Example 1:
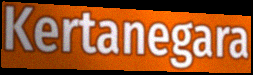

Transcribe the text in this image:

Kertanegara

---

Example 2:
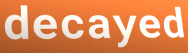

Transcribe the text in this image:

decayed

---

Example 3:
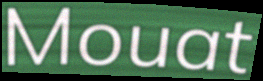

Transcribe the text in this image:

Mouat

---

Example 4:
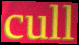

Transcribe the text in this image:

cull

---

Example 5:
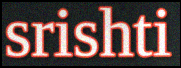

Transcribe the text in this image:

srishti